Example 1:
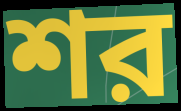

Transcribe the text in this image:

শর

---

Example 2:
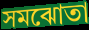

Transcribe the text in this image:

সমঝোতা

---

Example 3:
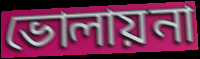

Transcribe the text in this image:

ভোলায়না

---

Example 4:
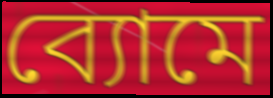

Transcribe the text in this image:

ব্যোমে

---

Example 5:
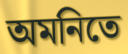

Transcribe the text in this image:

অমনিতে